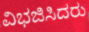
ವಿಭಜಿಸಿದರು